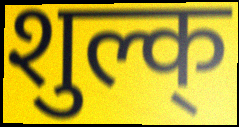
शुल्क्